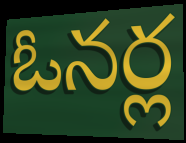
ఓనర్ల